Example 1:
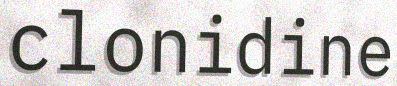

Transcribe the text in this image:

clonidine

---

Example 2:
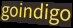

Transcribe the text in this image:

goindigo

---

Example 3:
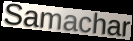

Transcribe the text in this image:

Samachar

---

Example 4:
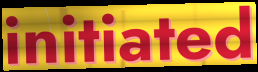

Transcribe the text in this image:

initiated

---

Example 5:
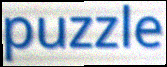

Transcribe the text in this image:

puzzle